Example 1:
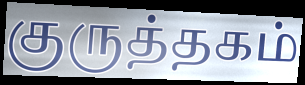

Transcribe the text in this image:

குருத்தகம்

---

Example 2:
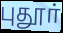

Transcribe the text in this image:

புதூர்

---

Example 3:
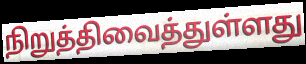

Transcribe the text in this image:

நிறுத்திவைத்துள்ளது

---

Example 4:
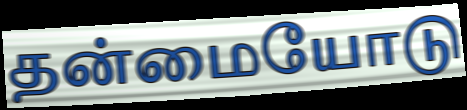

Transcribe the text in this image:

தன்மையோடு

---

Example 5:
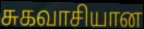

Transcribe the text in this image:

சுகவாசியான